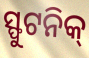
ସ୍ଫୁଟନିକ୍